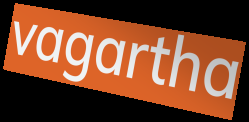
vagartha